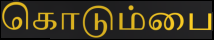
கொடும்பை